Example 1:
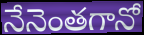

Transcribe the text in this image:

నేనెంతగానో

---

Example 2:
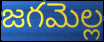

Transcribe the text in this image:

జగమెల్ల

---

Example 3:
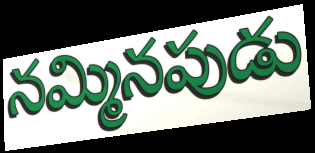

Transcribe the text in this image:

నమ్మినపుడు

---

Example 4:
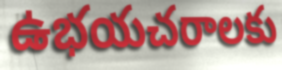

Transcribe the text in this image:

ఉభయచరాలకు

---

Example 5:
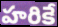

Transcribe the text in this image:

హరికే